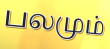
பலமும்